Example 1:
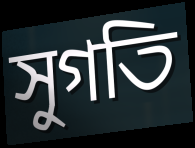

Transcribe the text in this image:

সুগতি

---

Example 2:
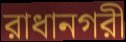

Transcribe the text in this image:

রাধানগরী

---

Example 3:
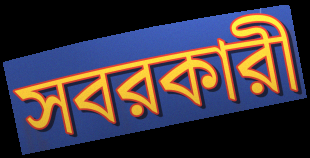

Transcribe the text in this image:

সবরকারী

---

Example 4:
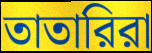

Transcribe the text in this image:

তাতারিরা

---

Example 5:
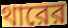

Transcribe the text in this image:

থারের